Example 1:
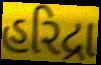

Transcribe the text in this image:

હરિદ્રા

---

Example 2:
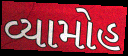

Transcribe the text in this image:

વ્યામોહ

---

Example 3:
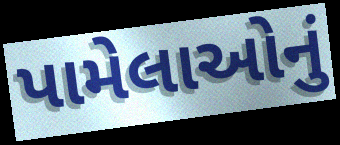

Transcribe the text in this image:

પામેલાઓનું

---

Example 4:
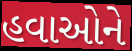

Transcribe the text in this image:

હવાઓને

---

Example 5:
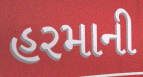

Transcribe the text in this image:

હરમાની